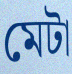
মেটা